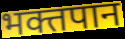
भक्तपान